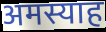
अमस्याह